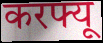
करफ्यू